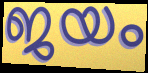
ജയം